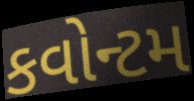
કવોન્ટમ